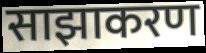
साझाकरण